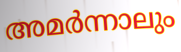
അമർന്നാലും